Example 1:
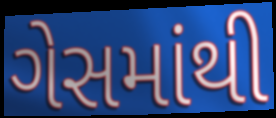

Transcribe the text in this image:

ગેસમાંથી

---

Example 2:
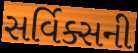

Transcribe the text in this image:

સર્વિક્સની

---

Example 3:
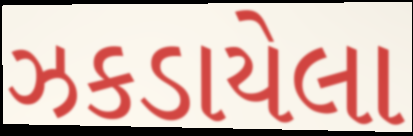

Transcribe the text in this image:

ઝકડાયેલા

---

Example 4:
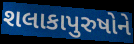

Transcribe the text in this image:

શલાકાપુરુષોને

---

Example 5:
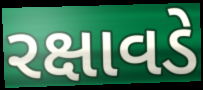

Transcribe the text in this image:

રક્ષાવડે